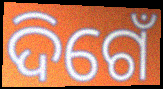
ଦିଗେଁ